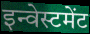
इन्वेस्टमेंट